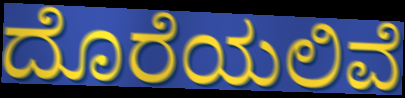
ದೊರೆಯಲಿವೆ